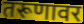
तरूणावर